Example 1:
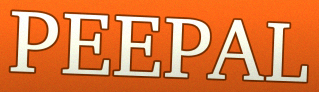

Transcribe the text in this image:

PEEPAL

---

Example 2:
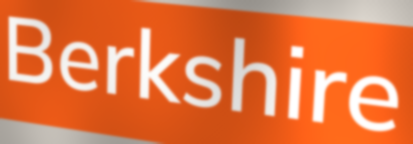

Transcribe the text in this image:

Berkshire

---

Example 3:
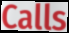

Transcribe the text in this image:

Calls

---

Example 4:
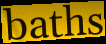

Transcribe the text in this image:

baths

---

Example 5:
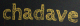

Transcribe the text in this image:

chadave